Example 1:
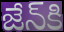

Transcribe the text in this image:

జేన్‌కి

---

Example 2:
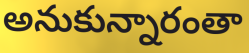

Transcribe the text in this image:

అనుకున్నారంతా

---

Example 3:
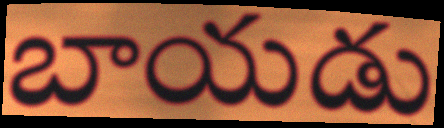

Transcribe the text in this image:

బాయడు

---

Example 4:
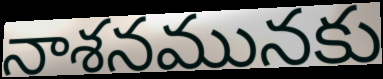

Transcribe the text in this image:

నాశనమునకు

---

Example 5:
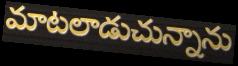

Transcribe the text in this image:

మాటలాడుచున్నాను